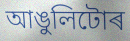
আঙুলিটোৰ